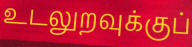
உடலுறவுக்குப்